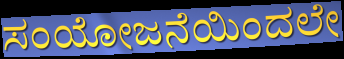
ಸಂಯೋಜನೆಯಿಂದಲೇ